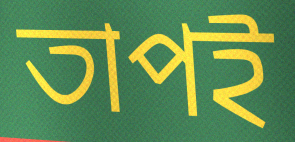
তাপই